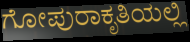
ಗೋಪುರಾಕೃತಿಯಲ್ಲಿ